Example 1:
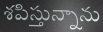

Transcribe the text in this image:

శపిస్తున్నాను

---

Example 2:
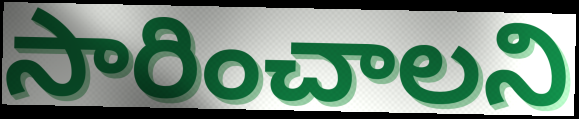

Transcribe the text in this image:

సారించాలని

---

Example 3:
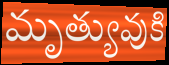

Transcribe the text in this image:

మృత్యువుకి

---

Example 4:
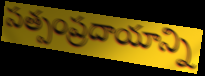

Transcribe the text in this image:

సత్సంప్రదాయాన్ని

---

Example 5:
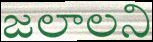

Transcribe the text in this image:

జలాలని